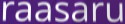
raasaru